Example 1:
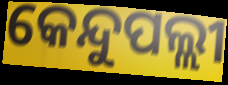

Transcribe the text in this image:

କେନ୍ଦୁପଲ୍ଲୀ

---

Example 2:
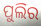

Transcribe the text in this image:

ପୁଲିର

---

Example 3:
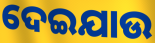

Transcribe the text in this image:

ଦେଇଯାଉ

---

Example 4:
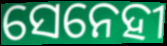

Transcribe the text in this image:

ସେନେହୀ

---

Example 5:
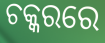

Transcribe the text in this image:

ଚକ୍କରରେ